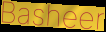
Basheer